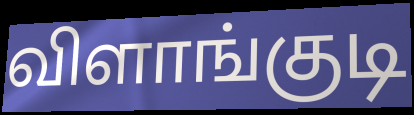
விளாங்குடி